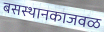
बसस्थानकाजवळ